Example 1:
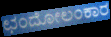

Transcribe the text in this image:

ಛಂದೋಲಂಕಾರ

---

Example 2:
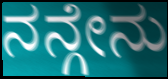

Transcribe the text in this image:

ನನ್ಗೇನು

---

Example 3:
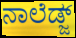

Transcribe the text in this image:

ನಾಲೆಡ್ಜ್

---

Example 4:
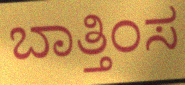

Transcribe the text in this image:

ಬಾತ್ತಿಂಸ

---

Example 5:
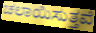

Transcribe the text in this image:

ಚಲಾಯಿಸುತ್ತವೆ